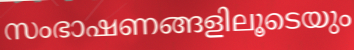
സംഭാഷണങ്ങളിലൂടെയും